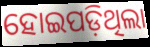
ହୋଇପଡ଼ିଥିଲା